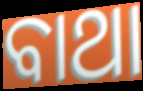
ବାଥା